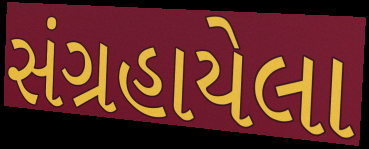
સંગ્રહાયેલા